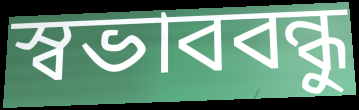
স্বভাববন্ধু